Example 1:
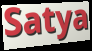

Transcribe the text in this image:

Satya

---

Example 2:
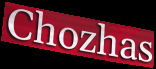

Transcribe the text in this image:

Chozhas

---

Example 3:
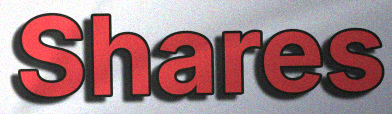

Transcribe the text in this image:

Shares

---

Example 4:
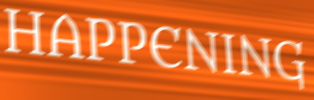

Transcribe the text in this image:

HAPPENING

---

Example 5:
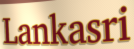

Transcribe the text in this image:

Lankasri